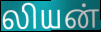
லியன்